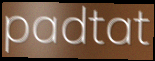
padtat